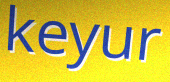
keyur